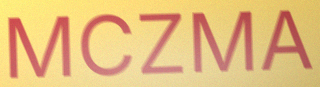
MCZMA